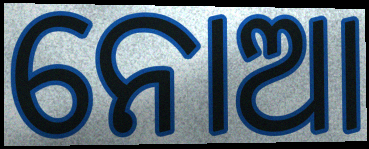
ନୋଆ